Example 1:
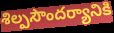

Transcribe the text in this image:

శిల్పసౌందర్యానికి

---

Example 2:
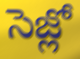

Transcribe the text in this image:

సెజ్లో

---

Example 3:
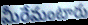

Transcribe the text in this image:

మీరేమంటారు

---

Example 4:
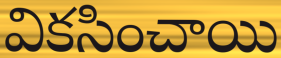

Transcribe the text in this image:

వికసించాయి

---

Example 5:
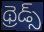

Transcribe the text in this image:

థ్రెడ్స్